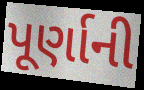
પૂર્ણાની